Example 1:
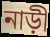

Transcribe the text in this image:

নাড়ী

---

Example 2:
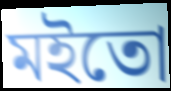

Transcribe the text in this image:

মইতো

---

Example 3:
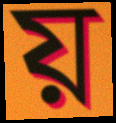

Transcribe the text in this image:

য়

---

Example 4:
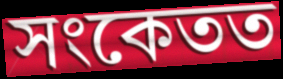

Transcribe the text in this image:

সংকেতত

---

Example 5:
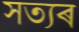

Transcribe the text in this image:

সত্যৰ